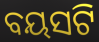
ବୟସଟି